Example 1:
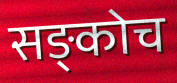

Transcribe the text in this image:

सङ्कोच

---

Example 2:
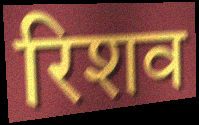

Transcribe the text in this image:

रिशव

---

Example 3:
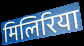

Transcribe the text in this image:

मिलिरिया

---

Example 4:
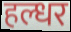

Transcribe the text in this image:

हल्धर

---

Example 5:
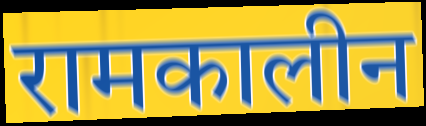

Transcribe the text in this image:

रामकालीन